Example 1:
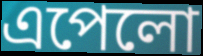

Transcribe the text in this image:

এপেলো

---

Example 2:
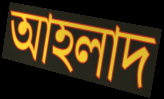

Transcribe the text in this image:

আহলাদ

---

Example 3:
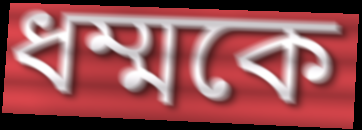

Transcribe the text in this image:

ধম্মকে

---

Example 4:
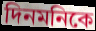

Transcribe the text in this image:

দিনমনিকে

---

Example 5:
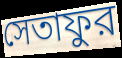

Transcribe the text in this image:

সেতাফুর